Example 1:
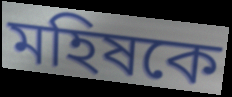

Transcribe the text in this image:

মহিষকে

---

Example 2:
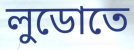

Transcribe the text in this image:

লুডোতে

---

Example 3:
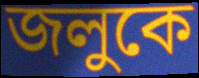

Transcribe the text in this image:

জলুকে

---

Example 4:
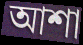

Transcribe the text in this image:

আশা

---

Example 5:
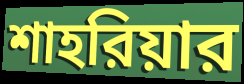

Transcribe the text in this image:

শাহরিয়ার